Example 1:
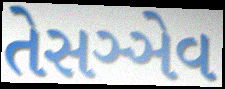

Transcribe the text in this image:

તેસઞ્ઞેવ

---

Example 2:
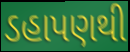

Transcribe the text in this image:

ડહાપણથી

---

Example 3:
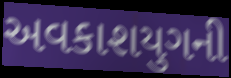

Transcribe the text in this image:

અવકાશયુગની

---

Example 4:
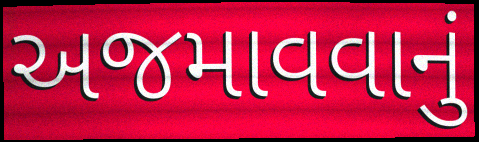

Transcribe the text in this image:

અજમાવવાનું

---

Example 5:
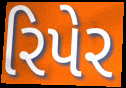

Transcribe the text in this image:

રિપેર